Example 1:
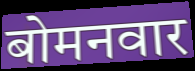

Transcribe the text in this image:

बोमनवार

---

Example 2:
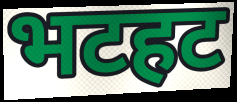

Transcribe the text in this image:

भटहट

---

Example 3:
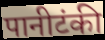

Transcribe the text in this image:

पानीटंकी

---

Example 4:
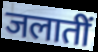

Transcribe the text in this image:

जलातीं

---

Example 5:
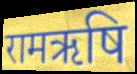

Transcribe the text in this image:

रामऋषि